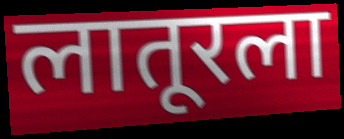
लातूरला